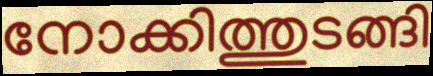
നോക്കിത്തുടങ്ങി